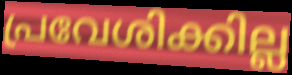
പ്രവേശിക്കില്ല